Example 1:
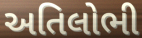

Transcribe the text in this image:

અતિલોભી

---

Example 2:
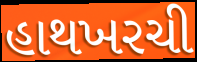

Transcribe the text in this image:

હાથખરચી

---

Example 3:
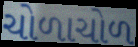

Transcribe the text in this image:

ચોળાચોળ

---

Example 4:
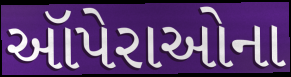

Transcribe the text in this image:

ઑપેરાઓના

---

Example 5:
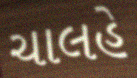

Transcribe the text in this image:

ચાલહે